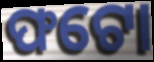
ଫଟୋ